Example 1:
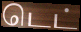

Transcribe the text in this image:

டெட்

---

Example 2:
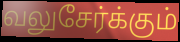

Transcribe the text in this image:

வலுசேர்க்கும்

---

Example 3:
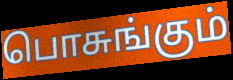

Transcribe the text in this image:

பொசுங்கும்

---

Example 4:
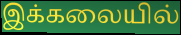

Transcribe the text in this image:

இக்கலையில்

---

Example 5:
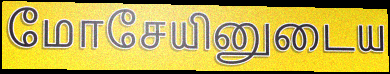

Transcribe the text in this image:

மோசேயினுடைய